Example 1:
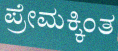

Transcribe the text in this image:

ಪ್ರೇಮಕ್ಕಿಂತ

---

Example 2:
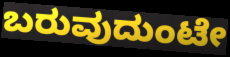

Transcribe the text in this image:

ಬರುವುದುಂಟೇ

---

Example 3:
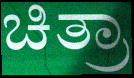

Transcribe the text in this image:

ಚಿತ್ರಾ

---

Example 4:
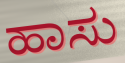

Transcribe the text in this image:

ಹಾಸು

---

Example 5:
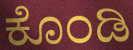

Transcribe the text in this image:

ಕೊಂಡಿ